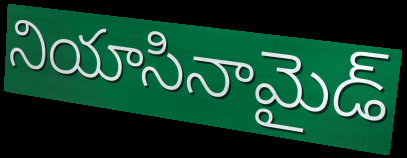
నియాసినామైడ్